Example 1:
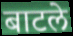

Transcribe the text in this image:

बाटले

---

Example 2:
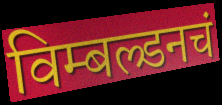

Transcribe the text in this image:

विम्बल्डनचं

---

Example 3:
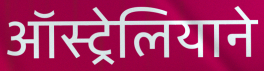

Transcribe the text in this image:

ऑस्ट्रेलियाने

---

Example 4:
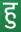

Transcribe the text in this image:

हु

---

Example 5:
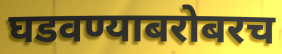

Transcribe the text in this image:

घडवण्याबरोबरच